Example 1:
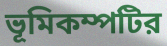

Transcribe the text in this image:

ভূমিকম্পটির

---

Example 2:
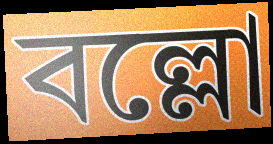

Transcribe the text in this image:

বল্লো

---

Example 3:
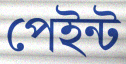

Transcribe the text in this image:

পেইন্ট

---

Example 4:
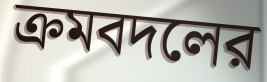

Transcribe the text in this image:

ক্রমবদলের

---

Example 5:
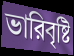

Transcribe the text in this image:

ভারিবৃষ্টি